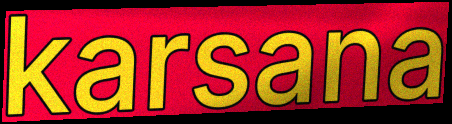
karsana